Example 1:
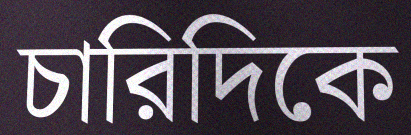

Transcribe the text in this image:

চারিদিকে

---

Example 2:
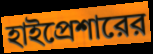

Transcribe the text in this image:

হাইপ্রেশারের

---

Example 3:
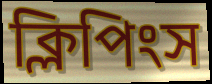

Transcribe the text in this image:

ক্লিপিংস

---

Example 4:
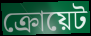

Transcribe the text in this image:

ক্রোয়েট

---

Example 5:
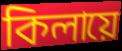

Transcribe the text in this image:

কিলায়ে